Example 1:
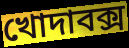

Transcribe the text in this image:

খোদাবক্স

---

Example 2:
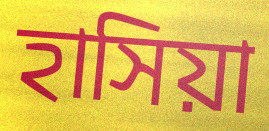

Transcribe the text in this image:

হাসিয়া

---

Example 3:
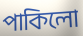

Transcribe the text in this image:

পাকিলো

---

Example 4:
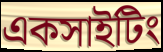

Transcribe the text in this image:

একসাইটিং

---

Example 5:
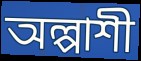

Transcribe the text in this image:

অল্পাশী